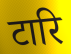
टारि